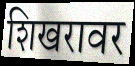
शिखरावर